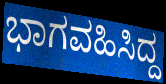
ಭಾಗವಹಿಸಿದ್ದ